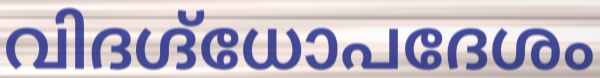
വിദഗ്ദ്ധോപദേശം